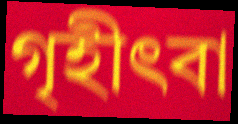
গৃহীৎবা